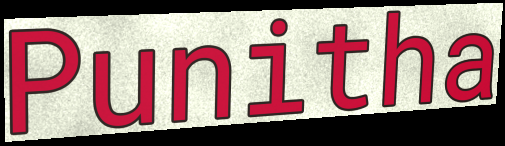
Punitha